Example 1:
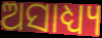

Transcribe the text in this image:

ଅସାଧ୍ୟ୍ୟ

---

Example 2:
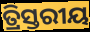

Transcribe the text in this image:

ତ୍ରିସ୍ତରୀୟ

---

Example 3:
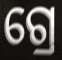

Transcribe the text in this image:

ଗ୍ରେ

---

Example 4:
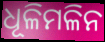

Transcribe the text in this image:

ଧୂଳିମଳିନ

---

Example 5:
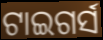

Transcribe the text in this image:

ଟାଇଗର୍ସ